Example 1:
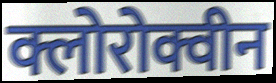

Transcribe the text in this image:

क्लोरोक्वीन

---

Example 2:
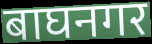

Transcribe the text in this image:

बाघनगर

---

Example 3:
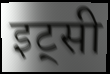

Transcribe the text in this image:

इट्सी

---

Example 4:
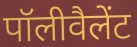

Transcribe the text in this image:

पॉलीवैलेंट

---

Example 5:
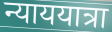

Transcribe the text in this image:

न्याययात्रा